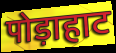
पोड़ाहाट